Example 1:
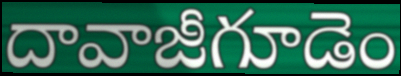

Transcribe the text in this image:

దావాజీగూడెం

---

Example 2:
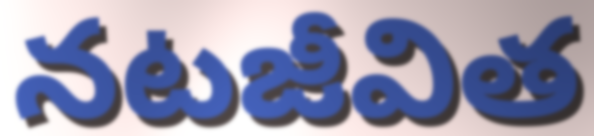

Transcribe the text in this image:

నటజీవిత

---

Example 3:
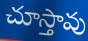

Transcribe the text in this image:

చూస్తావు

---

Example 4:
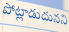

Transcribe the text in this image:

పోట్లాడుదునని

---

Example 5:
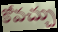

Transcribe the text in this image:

కోవచ్చు